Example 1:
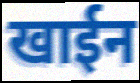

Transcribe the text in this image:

खाईन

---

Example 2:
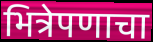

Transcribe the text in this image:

भित्रेपणाचा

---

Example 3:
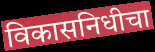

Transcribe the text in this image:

विकासनिधीचा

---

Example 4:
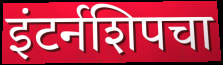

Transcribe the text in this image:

इंटर्नशिपचा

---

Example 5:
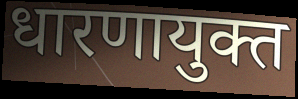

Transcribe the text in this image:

धारणायुक्त